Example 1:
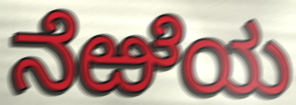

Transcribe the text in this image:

ನೆಱೆಯ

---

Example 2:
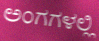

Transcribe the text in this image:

ಅಂಗಗಳಲ್ಲಿ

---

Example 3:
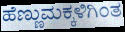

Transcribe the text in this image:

ಹೆಣ್ಣುಮಕ್ಕಳಿಗಿಂತ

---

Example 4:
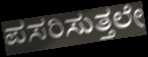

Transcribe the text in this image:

ಪಸರಿಸುತ್ತಲೇ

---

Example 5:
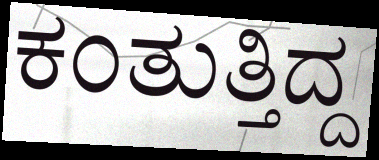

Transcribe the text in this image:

ಕಂತುತ್ತಿದ್ದ